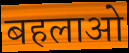
बहलाओ